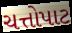
ચત્તોપાટ